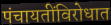
पंचायतींविरोधात